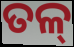
ତଳ୍